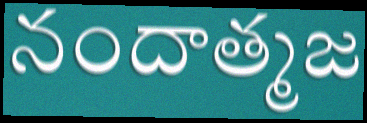
నందాత్మజ